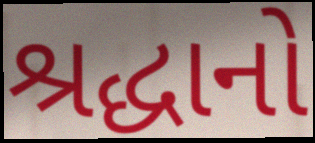
શ્રદ્ધાનો